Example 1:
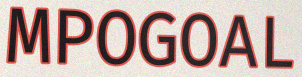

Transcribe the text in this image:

MPOGOAL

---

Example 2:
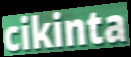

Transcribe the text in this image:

cikinta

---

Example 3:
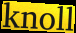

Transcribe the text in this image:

knoll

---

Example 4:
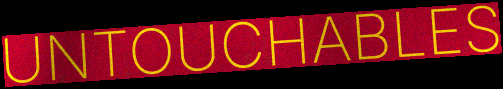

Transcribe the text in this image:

UNTOUCHABLES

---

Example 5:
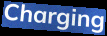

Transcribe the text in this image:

Charging